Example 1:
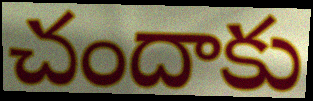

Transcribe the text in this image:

చందాకు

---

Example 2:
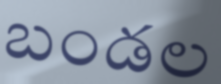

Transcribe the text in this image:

బండల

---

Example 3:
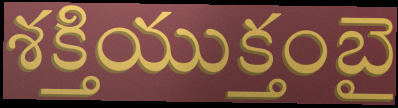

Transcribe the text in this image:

శక్తియుక్తంబై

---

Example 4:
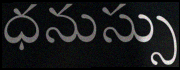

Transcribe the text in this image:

ధనుస్సు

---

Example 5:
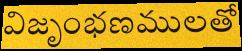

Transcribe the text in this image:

విజృంభణములతో